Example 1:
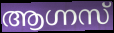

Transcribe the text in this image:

ആഗ്നസ്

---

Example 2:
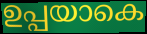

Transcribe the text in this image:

ഉപ്പയാകെ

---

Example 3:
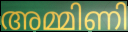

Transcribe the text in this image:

അമ്മിണി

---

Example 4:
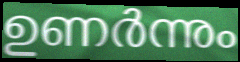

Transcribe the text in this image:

ഉണർന്നും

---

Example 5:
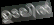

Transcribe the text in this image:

ഉടലിൽ